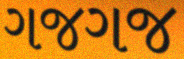
ગજગજ